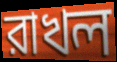
রাখল